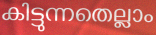
കിട്ടുന്നതെല്ലാം